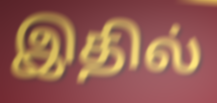
இதில்